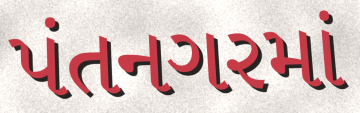
પંતનગરમાં